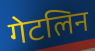
गेटलिन